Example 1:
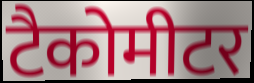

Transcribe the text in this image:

टैकोमीटर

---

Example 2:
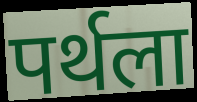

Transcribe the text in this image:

पर्थला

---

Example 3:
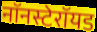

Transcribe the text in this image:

नॉनस्टेरॉयड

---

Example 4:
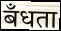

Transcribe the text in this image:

बँधता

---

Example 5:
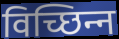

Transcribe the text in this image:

विच्छिन्न